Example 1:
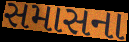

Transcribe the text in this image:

સમાસના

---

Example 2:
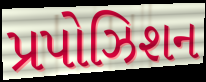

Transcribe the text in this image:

પ્રપોઝિશન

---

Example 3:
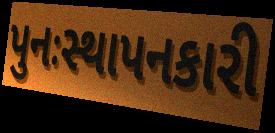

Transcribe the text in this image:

પુનઃસ્થાપનકારી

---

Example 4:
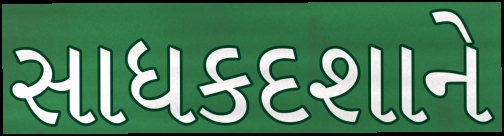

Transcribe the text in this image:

સાધકદશાને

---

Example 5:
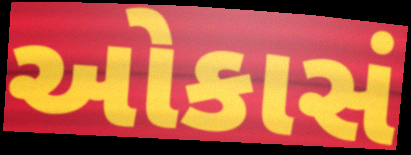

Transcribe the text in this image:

ઓકાસં